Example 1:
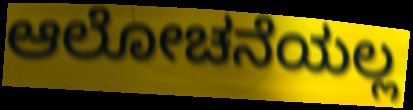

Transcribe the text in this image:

ಆಲೋಚನೆಯಲ್ಲ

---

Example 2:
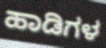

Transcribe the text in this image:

ಹಾಡಿಗಳ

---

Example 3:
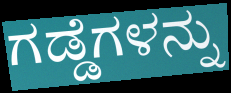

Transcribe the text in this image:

ಗಡ್ಡೆಗಳನ್ನು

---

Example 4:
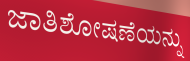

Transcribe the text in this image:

ಜಾತಿಶೋಷಣೆಯನ್ನು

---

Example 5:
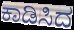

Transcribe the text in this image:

ಕಾಡಿಸಿದ